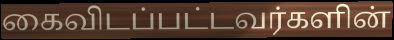
கைவிடப்பட்டவர்களின்